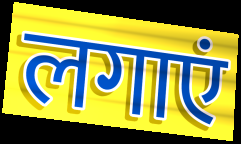
लगाएं